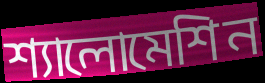
শ্যালোমেশিন